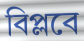
বিপ্লবে